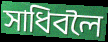
সাধিবলৈ